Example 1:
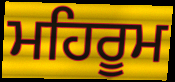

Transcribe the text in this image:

ਮਹਿਰੂਮ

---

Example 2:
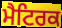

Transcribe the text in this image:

ਮੈਟਿਰਕ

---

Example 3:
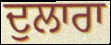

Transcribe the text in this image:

ਦੁਲਾਰਾ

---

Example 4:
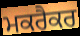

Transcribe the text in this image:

ਮਕਰੈਕਰ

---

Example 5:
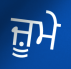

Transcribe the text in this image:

ਜ਼ੂਮੇ